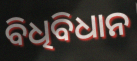
ବିଧିବିଧାନ